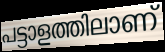
പട്ടാളത്തിലാണ്